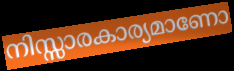
നിസ്സാരകാര്യമാണോ